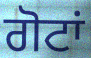
ਗੋਟਾਂ